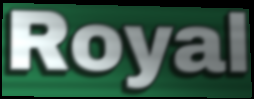
Royal